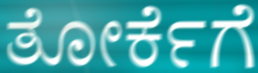
ತೋರ್ಕೆಗೆ